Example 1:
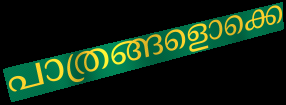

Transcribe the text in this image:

പാത്രങ്ങളൊക്കെ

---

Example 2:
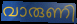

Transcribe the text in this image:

വാരുണി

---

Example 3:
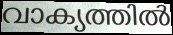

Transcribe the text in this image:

വാക്യത്തിൽ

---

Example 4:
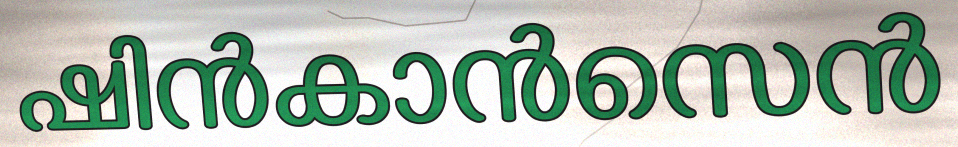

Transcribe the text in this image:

ഷിൻകാൻസെൻ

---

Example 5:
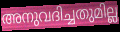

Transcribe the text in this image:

അനുവദിച്ചതുമില്ല